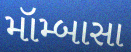
મૉમ્બાસા